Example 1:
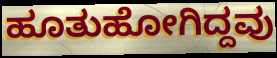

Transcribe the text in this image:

ಹೂತುಹೋಗಿದ್ದವು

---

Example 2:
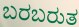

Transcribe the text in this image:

ಬರಬರುತ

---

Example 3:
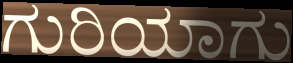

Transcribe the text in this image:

ಗುರಿಯಾಗು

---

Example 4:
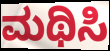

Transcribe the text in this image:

ಮಥಿಸಿ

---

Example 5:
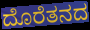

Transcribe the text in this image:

ದೊರೆತನದ